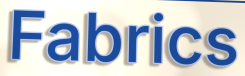
Fabrics